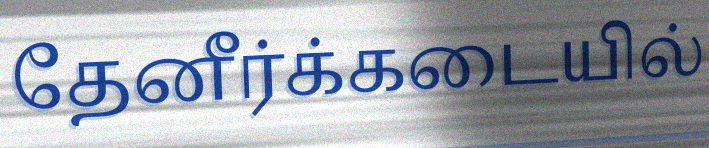
தேனீர்க்கடையில்